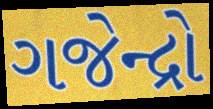
ગજેન્દ્રો